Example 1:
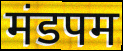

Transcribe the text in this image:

मंडपम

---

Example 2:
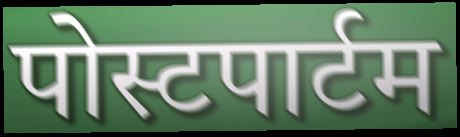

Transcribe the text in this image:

पोस्टपार्टम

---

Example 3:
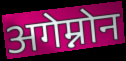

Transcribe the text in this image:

अगेम्नोन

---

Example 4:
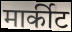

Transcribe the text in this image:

मार्कीट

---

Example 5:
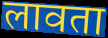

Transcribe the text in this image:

लावता